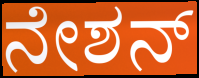
ನೇಶನ್